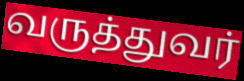
வருத்துவர்